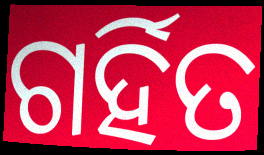
ଗର୍ହିତ